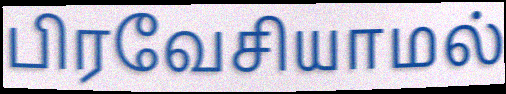
பிரவேசியாமல்